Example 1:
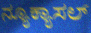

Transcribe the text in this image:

ನ್ಯೂಕ್ಯಾಸಲ್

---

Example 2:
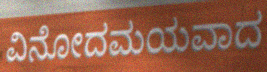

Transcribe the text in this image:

ವಿನೋದಮಯವಾದ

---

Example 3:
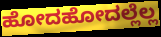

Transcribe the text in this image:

ಹೋದಹೋದಲ್ಲೆಲ್ಲ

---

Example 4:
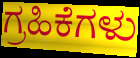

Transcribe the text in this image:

ಗ್ರಹಿಕೆಗಳು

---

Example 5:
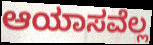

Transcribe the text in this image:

ಆಯಾಸವೆಲ್ಲ